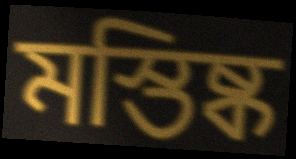
মস্তিষ্ক